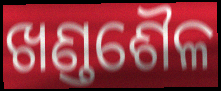
ଖଣ୍ଡଶୈଳ